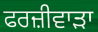
ਫਰਜ਼ੀਵਾਡ਼ਾ